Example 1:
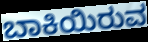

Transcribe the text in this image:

ಬಾಕಿಯಿರುವ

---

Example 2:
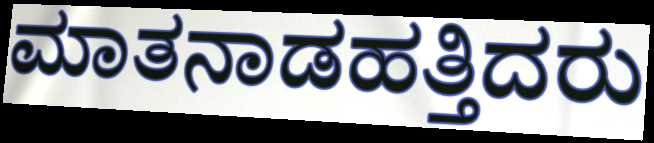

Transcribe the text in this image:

ಮಾತನಾಡಹತ್ತಿದರು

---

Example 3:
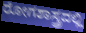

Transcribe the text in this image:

ರೋಗಶಾಸ್ತ್ರದಲ್ಲಿ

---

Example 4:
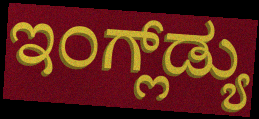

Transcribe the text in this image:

ಇಂಗ್ಲ್‌ಡ್ಯು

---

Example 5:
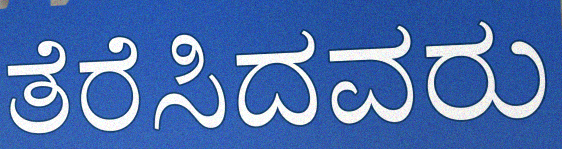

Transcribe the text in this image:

ತೆರೆಸಿದವರು